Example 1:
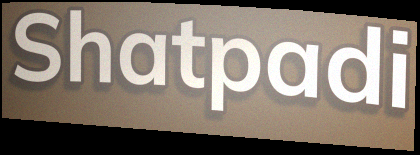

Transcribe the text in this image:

Shatpadi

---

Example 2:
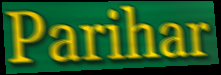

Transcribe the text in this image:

Parihar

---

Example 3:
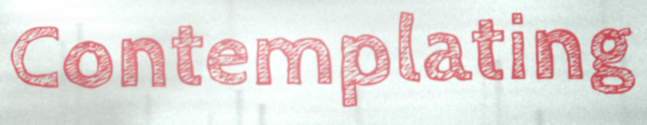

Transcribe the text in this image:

Contemplating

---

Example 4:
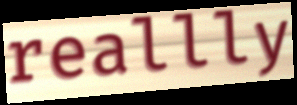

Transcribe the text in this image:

reallly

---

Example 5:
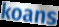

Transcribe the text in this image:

koans